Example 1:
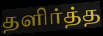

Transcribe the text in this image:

தளிர்த்த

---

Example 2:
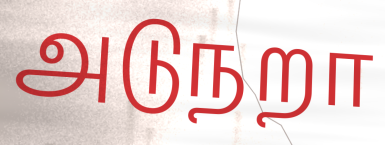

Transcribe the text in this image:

அடுநறா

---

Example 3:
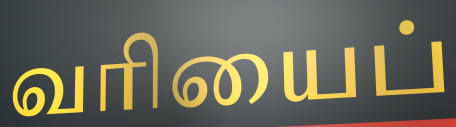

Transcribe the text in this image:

வரியைப்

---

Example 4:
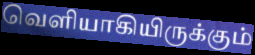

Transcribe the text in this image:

வெளியாகியிருக்கும்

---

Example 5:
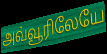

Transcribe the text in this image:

அவ்வூரிலேயே